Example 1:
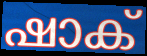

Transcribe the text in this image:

ഷാക്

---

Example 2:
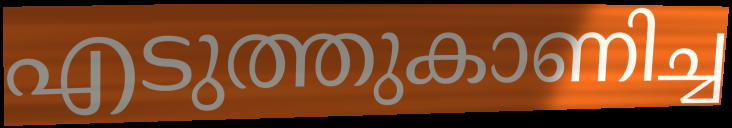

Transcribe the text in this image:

എടുത്തുകാണിച്ച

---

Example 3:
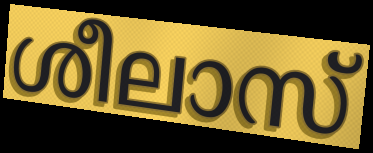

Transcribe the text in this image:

ശീലാസ്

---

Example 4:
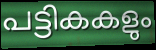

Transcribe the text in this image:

പട്ടികകളും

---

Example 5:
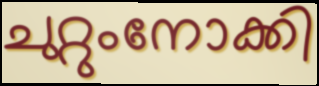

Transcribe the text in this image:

ചുറ്റുംനോക്കി